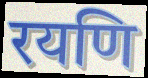
रयणि